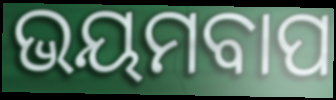
ଭୟମବାପ